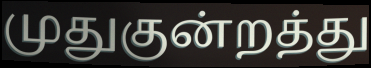
முதுகுன்றத்து